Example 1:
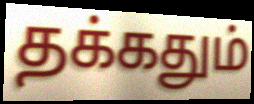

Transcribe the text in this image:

தக்கதும்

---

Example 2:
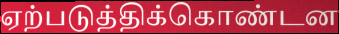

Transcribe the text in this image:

ஏற்படுத்திக்கொண்டன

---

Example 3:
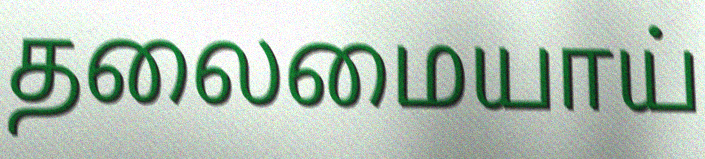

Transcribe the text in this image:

தலைமையாய்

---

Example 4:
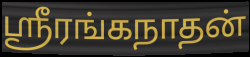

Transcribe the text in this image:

ஸ்ரீரங்கநாதன்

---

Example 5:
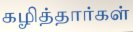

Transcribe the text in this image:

கழித்தார்கள்